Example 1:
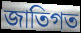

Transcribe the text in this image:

জাতিগত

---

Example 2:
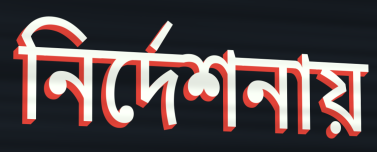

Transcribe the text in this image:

নির্দেশনায়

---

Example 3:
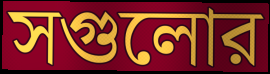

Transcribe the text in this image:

সগুলোর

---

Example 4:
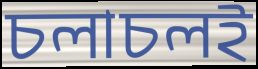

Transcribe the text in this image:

চলাচলই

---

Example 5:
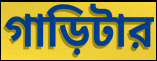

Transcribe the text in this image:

গাড়িটার